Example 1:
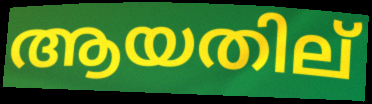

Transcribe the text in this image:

ആയതില്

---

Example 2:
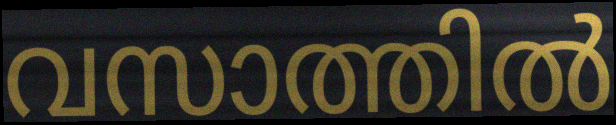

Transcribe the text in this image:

വസാത്തിൽ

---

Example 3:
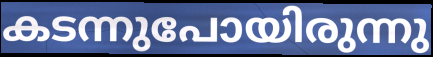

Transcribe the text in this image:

കടന്നുപോയിരുന്നു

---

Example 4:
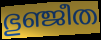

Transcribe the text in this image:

ഭുഞ്ജീത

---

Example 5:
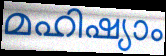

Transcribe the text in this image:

മഹിഷ്യാം